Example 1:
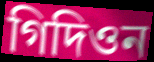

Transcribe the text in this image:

গিদিওন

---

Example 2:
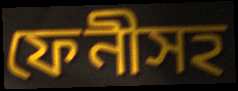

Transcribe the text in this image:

ফেনীসহ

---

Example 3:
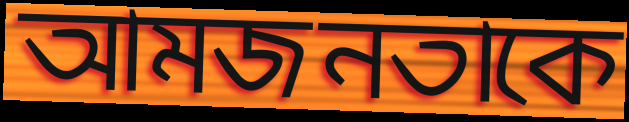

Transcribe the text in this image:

আমজনতাকে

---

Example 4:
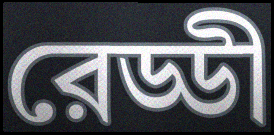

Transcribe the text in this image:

রেড্ডী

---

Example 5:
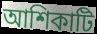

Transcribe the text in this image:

আশিকাটি